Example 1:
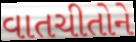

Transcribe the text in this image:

વાતચીતોને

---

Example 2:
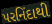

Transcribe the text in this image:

પરનિંદાથી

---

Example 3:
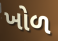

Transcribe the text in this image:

ખોળ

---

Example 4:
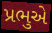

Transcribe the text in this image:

પ્રભુએ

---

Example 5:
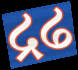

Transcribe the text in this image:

દ્રઢ